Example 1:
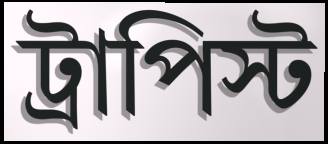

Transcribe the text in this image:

ট্রাপিস্ট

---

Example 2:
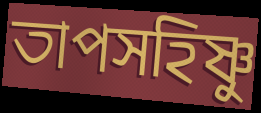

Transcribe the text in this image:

তাপসহিষ্ণু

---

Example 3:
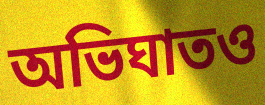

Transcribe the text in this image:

অভিঘাতও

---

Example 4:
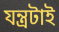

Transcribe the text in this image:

যন্ত্রটাই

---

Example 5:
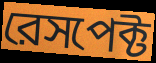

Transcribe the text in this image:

রেসপেক্ট